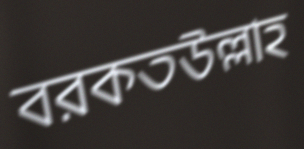
বরকতউল্লাহ